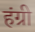
हंग्री